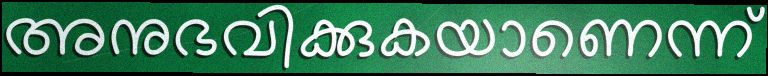
അനുഭവിക്കുകയാണെന്ന്